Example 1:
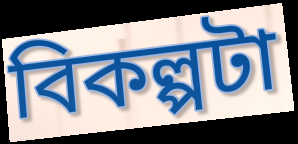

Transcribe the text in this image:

বিকল্পটা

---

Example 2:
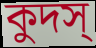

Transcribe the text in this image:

কুদস্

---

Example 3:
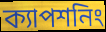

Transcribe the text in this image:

ক্যাপশনিং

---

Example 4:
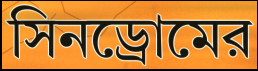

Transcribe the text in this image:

সিনড্রোমের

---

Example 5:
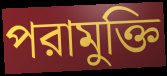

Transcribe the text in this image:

পরামুক্তি